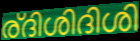
ര്ദിശിദിശി